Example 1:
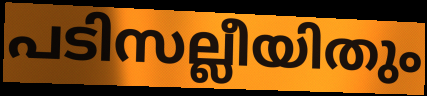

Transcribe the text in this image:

പടിസല്ലീയിതും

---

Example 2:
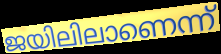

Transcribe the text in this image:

ജയിലിലാണെന്ന്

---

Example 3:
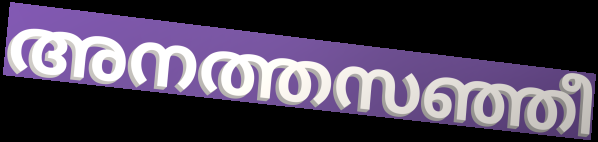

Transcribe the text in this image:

അനത്തസഞ്ഞീ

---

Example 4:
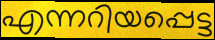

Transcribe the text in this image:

എന്നറിയപ്പെട്ട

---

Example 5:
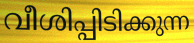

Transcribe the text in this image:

വീശിപ്പിടിക്കുന്ന